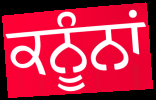
ਕਨੂੰਨਾਂ